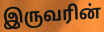
இருவரின்